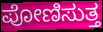
ಪೋಣಿಸುತ್ತ